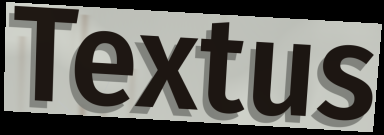
Textus